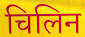
चिलिन